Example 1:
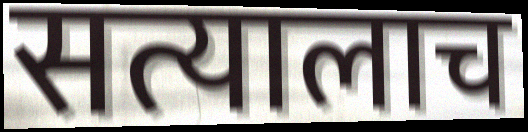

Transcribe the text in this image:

सत्यालाच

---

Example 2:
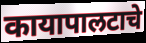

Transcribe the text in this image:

कायापालटाचे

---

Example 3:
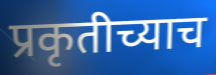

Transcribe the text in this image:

प्रकृतीच्याच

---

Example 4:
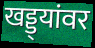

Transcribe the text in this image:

खड्ड्यांवर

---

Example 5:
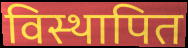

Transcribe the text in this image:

विस्थापित